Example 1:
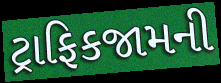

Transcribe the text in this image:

ટ્રાફિકજામની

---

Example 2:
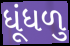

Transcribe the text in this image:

ધૂંધળુ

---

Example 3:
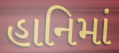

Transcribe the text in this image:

હાનિમાં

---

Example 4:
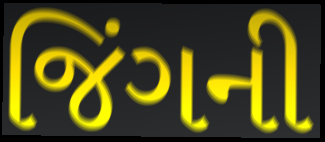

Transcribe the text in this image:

જિંગની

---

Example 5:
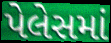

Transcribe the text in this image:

પેલેસમાં